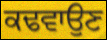
ਕਢਵਾਉਣ